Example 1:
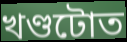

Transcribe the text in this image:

খণ্ডটোত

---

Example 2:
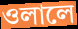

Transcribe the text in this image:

ওলালে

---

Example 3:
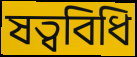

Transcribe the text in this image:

ষত্ববিধি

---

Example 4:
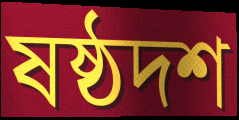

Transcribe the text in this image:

ষষ্ঠদশ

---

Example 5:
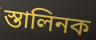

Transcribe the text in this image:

স্তালিনক